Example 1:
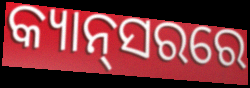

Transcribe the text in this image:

କ୍ୟାନ୍‌ସରରେ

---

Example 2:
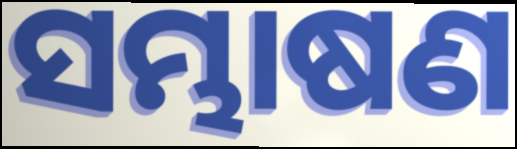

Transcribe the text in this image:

ସମ୍ଭାଷଣ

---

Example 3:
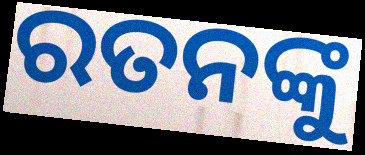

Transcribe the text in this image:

ରତନଙ୍କୁ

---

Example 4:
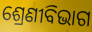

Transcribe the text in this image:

ଶ୍ରେଣୀବିଭାଗ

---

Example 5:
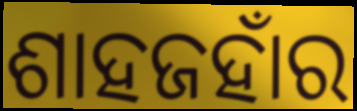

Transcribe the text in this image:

ଶାହଜହାଁର